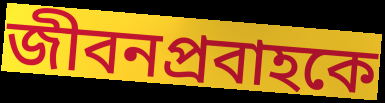
জীবনপ্রবাহকে